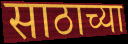
साठाच्या